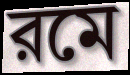
রমে